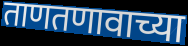
ताणतणावाच्या